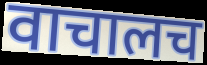
वाचालच